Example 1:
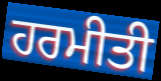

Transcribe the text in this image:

ਹਰਮੀਤੀ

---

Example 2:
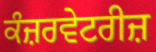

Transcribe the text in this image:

ਕੰਜ਼ਰਵੇਟਰੀਜ਼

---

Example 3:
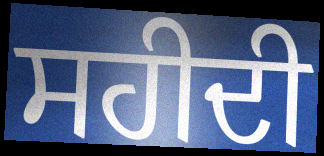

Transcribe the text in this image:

ਸਹੀਦੀ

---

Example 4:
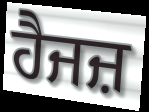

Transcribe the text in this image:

ਹੈਜਜ਼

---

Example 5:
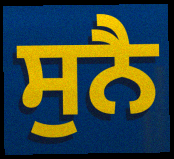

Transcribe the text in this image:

ਸੁਨੈ